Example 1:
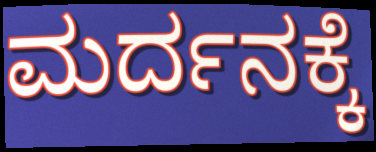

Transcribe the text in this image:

ಮರ್ದನಕ್ಕೆ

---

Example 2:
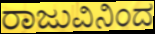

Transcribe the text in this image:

ರಾಜುವಿನಿಂದ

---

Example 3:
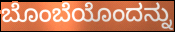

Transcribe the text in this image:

ಬೊಂಬೆಯೊಂದನ್ನು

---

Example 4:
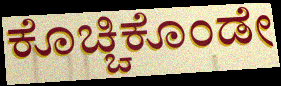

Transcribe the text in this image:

ಕೊಚ್ಚಿಕೊಂಡೇ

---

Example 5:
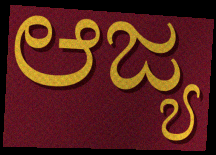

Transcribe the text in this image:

ಆಜ್ಯ